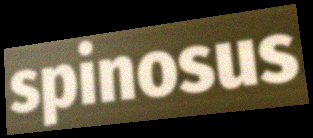
spinosus